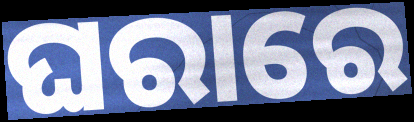
ଘରାରେ